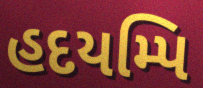
હદયમ્પિ